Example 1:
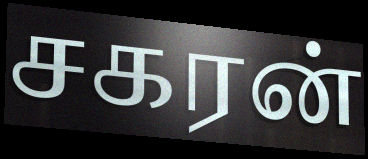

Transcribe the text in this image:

சகரன்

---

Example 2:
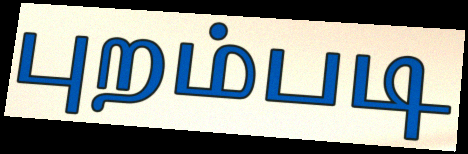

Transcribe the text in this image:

புறம்படி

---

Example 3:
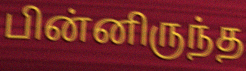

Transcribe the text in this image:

பின்னிருந்த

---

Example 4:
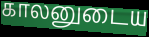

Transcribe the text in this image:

காலனுடைய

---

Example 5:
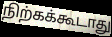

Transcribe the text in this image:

நிற்கக்கூடாது